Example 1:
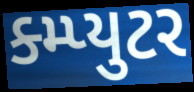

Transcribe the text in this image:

ક્મ્પ્યુટર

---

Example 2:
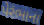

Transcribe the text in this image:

પેરંભાના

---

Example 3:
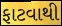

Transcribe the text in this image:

ફાટવાથી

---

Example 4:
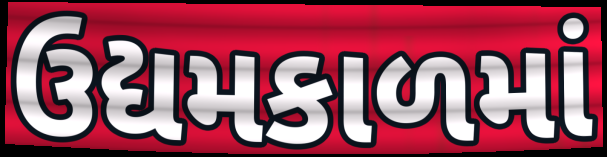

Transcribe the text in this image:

ઉદ્યમકાળમાં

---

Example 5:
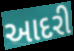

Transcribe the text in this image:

આદરી